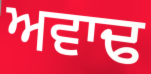
ਅਵਾਢ